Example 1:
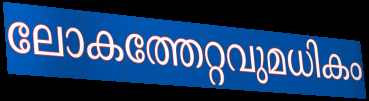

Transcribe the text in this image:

ലോകത്തേറ്റവുമധികം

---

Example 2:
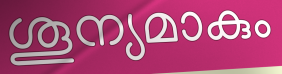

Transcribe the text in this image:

ശൂന്യമാകും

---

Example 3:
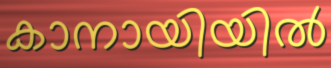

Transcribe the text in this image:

കാനായിയിൽ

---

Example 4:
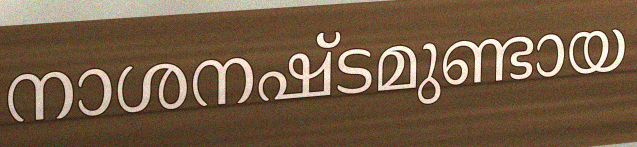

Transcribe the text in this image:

നാശനഷ്ടമുണ്ടായ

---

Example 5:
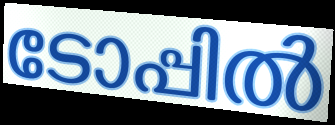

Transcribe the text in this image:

ടോപ്പിൽ